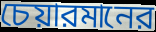
চেয়ারমানের